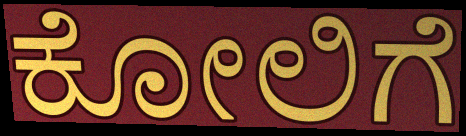
ಕೋಲಿಗೆ